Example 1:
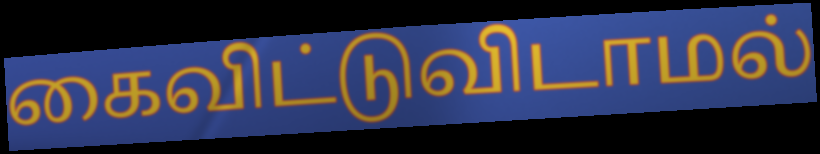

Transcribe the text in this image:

கைவிட்டுவிடாமல்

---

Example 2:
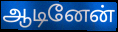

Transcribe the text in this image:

ஆடினேன்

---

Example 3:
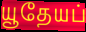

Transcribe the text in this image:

யூதேயப்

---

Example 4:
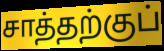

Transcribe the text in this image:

சாத்தற்குப்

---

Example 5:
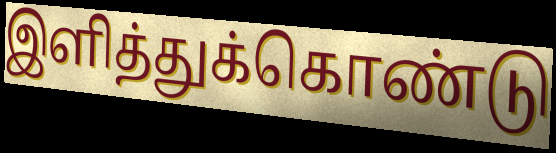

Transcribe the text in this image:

இளித்துக்கொண்டு